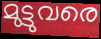
മുട്ടുവരെ